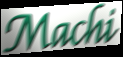
Machi